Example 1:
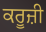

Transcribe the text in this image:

ਕਰੂਜ਼ੀ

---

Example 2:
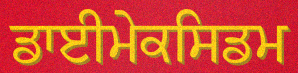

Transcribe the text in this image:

ਡਾਈਮੇਕਸਿਡਮ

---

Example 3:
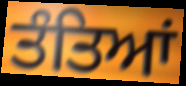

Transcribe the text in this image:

ਤੰਤਿਆਂ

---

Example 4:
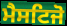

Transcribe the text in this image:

ਮੈਸਟਿਜੋ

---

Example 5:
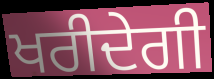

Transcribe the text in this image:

ਖਰੀਦੇਗੀ